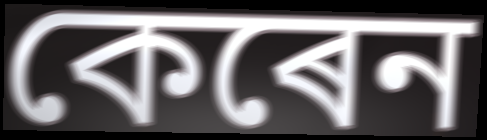
কেৰেন